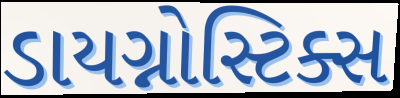
ડાયગ્નોસ્ટિક્સ